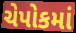
ચેપોકમાં